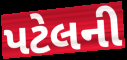
પટેલની